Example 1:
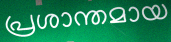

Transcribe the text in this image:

പ്രശാന്തമായ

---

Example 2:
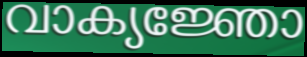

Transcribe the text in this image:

വാക്യജ്ഞോ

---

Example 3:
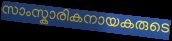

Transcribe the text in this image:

സാംസ്കാരികനായകരുടെ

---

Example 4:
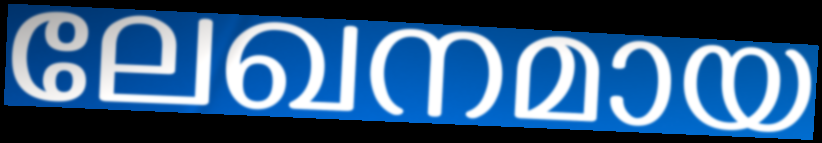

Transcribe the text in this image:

ലേഖനമായ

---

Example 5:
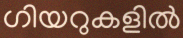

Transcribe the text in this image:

ഗിയറുകളിൽ